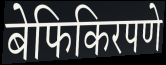
बेफिकिरपणे